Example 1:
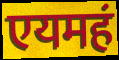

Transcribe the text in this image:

एयमहं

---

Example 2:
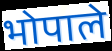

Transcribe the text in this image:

भोपाले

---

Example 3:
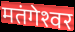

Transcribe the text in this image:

मतंगेश्वर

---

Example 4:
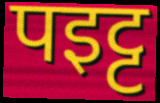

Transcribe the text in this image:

पइट्ट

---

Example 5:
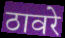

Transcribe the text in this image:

ठावरे